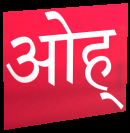
ओह्